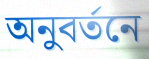
অনুবর্তনে